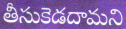
తీసుకెడదామని